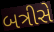
બત્રીસે